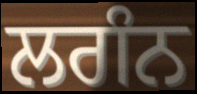
ਲਗੰਨ